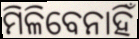
ମିଳିବେନାହିଁ